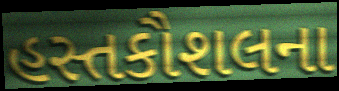
હસ્તકૌશલના